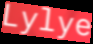
Lylye